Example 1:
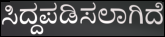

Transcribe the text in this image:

ಸಿದ್ದಪಡಿಸಲಾಗಿದೆ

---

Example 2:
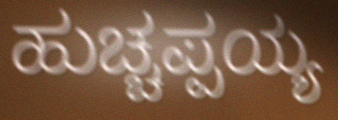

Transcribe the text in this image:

ಹುಚ್ಚಪ್ಪಯ್ಯ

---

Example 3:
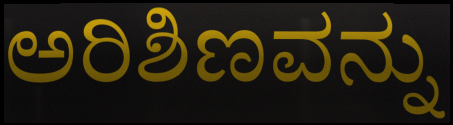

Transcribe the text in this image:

ಅರಿಶಿಣವನ್ನು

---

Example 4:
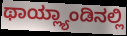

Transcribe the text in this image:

ಥಾಯ್ಲ್ಯಾಂಡಿನಲ್ಲಿ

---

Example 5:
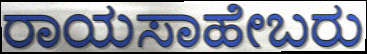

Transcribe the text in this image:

ರಾಯಸಾಹೇಬರು